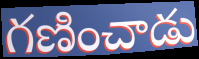
గణించాడు